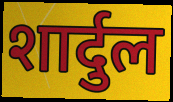
शार्दुल